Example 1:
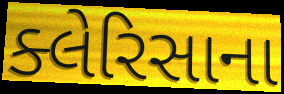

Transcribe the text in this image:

ક્લેરિસાના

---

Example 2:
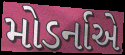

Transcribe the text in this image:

મોડર્નાએ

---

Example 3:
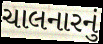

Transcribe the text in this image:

ચાલનારનું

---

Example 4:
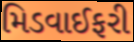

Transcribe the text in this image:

મિડવાઈફરી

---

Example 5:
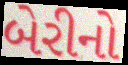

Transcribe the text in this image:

બેરીનો